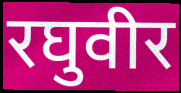
रघुवीर